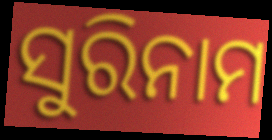
ସୁରିନାମ